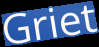
Griet